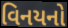
વિનયનો